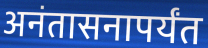
अनंतासनापर्यंत